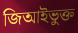
জিআইভুক্ত